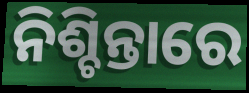
ନିଶ୍ଚିନ୍ତାରେ